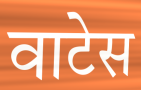
वाटेस